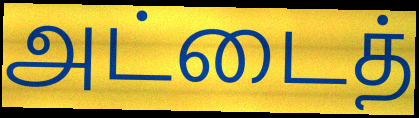
அட்டைத்